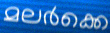
മലർക്കെ